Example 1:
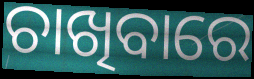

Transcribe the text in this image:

ଚାଖିବାରେ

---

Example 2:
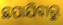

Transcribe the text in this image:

ଛପାଯିବାରୁ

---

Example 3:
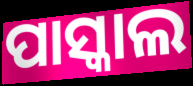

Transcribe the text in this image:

ପାସ୍କାଲ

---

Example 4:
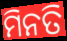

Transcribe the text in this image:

ମିନତି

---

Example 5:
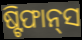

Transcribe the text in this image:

ଷ୍ଟିଫାନ୍‍ସ